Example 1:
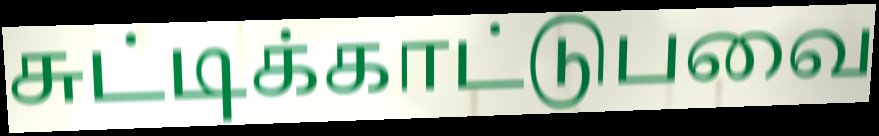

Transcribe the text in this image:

சுட்டிக்காட்டுபவை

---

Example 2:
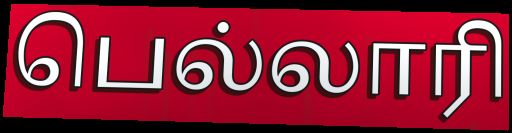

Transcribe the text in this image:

பெல்லாரி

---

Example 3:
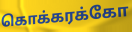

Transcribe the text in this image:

கொக்கரக்கோ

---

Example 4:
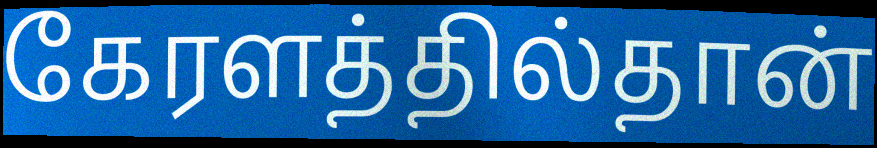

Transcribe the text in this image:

கேரளத்தில்தான்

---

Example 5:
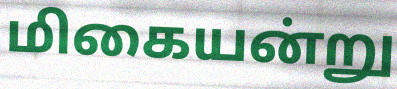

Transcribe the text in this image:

மிகையன்று